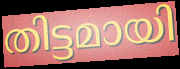
തിട്ടമായി